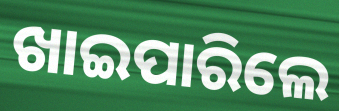
ଖାଇପାରିଲେ